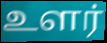
உளர்